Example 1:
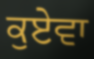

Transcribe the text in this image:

ਕੁਏਵਾ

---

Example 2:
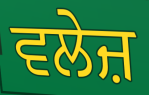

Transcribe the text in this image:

ਵਲੇਜ਼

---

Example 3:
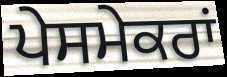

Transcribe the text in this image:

ਪੇਸਮੇਕਰਾਂ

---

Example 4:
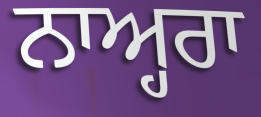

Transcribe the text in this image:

ਨਾਅ੍ਹਰਾ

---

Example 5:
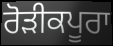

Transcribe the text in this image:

ਰੋੜੀਕਪੂਰਾ